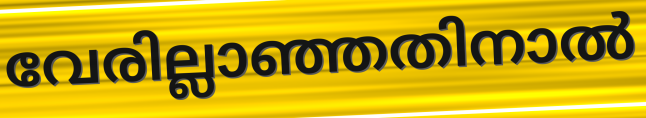
വേരില്ലാഞ്ഞതിനാൽ